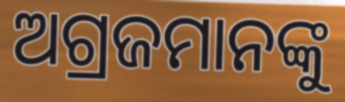
ଅଗ୍ରଜମାନଙ୍କୁ